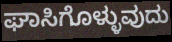
ಘಾಸಿಗೊಳ್ಳುವುದು